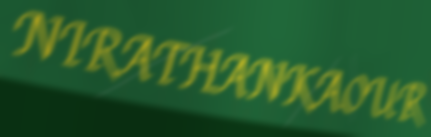
NIRATHANKAOUR